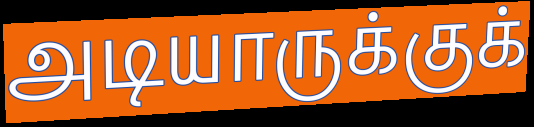
அடியாருக்குக்